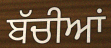
ਬੱਚੀਆਂ